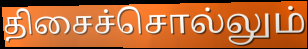
திசைச்சொல்லும்